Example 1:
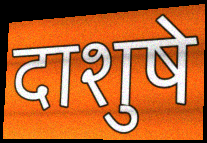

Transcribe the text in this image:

दाशुषे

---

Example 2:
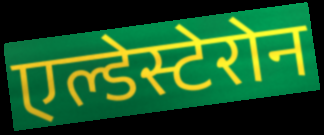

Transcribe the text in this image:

एल्डेस्टेरोन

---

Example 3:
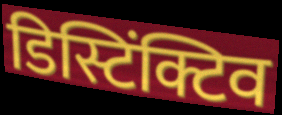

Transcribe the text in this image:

डिस्टिंक्टिव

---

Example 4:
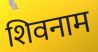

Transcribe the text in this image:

शिवनाम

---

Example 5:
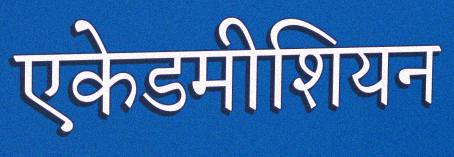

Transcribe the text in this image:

एकेडमीशियन